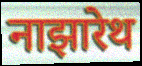
नाझारेथ